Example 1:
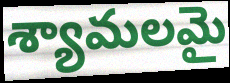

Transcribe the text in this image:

శ్యామలమై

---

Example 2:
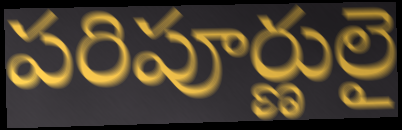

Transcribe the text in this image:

పరిపూర్ణులై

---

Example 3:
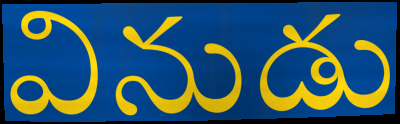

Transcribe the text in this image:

వినుడు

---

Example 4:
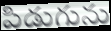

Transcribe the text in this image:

పిడుగును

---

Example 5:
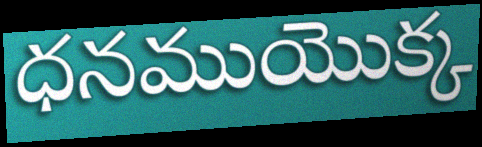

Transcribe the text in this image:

ధనముయొక్క